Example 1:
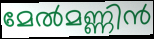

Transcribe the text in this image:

മേൽമണ്ണിൻ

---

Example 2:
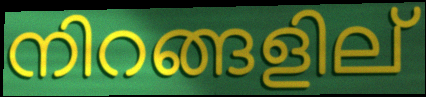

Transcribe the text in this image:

നിറങ്ങളില്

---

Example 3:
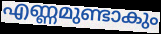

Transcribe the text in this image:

എണ്ണമുണ്ടാകും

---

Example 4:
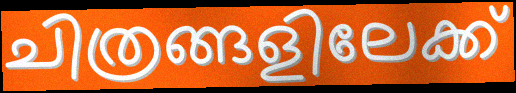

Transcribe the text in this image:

ചിത്രങ്ങളിലേക്ക്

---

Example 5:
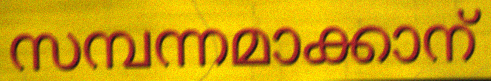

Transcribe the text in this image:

സമ്പന്നമാക്കാന്